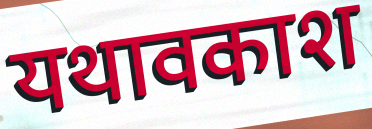
यथावकाश